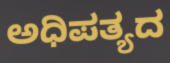
ಅಧಿಪತ್ಯದ